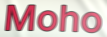
Moho